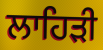
ਲਾਹਿੜੀ